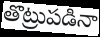
తొట్రుపడినా